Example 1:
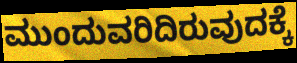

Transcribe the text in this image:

ಮುಂದುವರಿದಿರುವುದಕ್ಕೆ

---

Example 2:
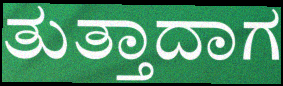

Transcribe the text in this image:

ತುತ್ತಾದಾಗ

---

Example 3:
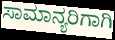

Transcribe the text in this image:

ಸಾಮಾನ್ಯರಿಗಾಗಿ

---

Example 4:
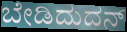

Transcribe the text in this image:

ಬೇಡಿದುದನ್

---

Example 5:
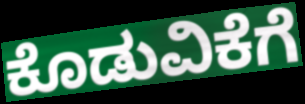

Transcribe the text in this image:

ಕೊಡುವಿಕೆಗೆ